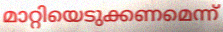
മാറ്റിയെടുക്കണമെന്ന്